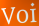
Voi